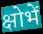
क्षोभें